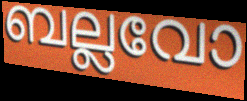
ബല്ലവോ